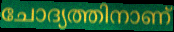
ചോദ്യത്തിനാണ്